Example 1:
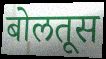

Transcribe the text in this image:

बोलतूस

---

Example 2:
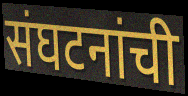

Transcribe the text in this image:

संघटनांची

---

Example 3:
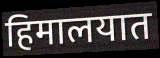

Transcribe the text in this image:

हिमालयात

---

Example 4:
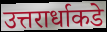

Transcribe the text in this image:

उत्तरार्धाकडे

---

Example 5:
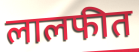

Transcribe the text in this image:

लालफीत